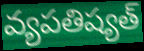
వ్యపతిష్యత్